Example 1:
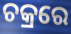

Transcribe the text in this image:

ଚକ୍ରରେ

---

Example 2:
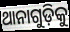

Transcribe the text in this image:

ଥାନାଗୁଡ଼ିକୁ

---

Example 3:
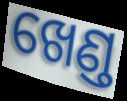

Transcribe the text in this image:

ଖେଣ୍ଡ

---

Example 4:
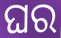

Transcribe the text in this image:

ଘର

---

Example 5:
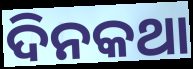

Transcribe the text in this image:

ଦିନକଥା